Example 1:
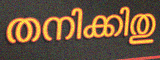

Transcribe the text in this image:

തനിക്കിതു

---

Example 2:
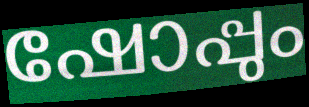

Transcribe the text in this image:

ഷോപ്പും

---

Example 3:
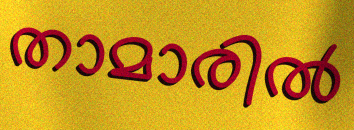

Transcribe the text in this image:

താമാരിൽ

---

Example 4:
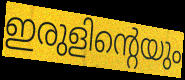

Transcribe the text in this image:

ഇരുളിന്റെയും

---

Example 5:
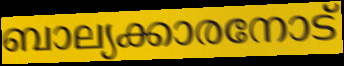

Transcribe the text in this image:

ബാല്യക്കാരനോട്